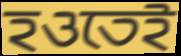
হওতেই